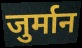
जुर्मान